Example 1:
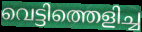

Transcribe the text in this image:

വെട്ടിത്തെളിച്ച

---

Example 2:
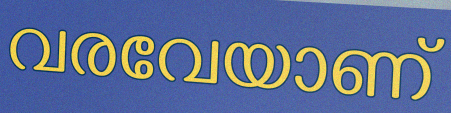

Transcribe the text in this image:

വരവേയാണ്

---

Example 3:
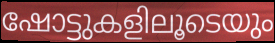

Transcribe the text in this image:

ഷോട്ടുകളിലൂടെയും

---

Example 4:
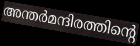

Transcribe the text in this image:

അന്തർമന്ദിരത്തിന്റെ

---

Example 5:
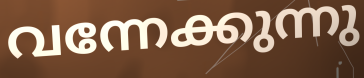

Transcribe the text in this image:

വന്നേക്കുന്നു